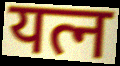
यत्न